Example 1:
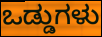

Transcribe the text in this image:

ಒಡ್ಡುಗಳು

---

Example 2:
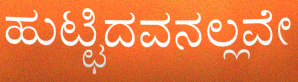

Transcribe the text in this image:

ಹುಟ್ಟಿದವನಲ್ಲವೇ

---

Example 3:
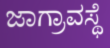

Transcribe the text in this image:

ಜಾಗ್ರಾವಸ್ಥೆ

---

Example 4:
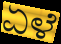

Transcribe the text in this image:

ಏಳೆ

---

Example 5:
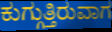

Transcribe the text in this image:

ಕುಗ್ಗುತ್ತಿರುವಾಗ